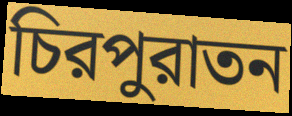
চিরপুরাতন